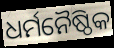
ଧର୍ମନୈଷ୍ଠିକ